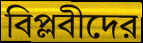
বিপ্লবীদের